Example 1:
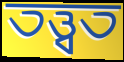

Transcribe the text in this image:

তত্ত্বত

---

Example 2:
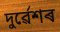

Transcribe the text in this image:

দুৰ্ৱেশৰ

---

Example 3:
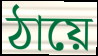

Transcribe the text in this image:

ঠায়ে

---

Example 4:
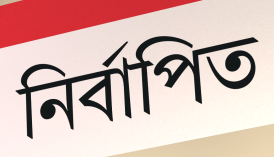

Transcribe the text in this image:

নিৰ্বাপিত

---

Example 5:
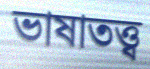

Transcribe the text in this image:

ভাষাতত্ত্ব